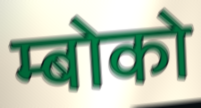
म्बोको